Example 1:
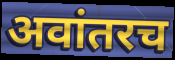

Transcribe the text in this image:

अवांतरच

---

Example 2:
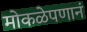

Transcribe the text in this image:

मोकळेपणानं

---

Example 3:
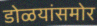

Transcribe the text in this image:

डोळयांसमोर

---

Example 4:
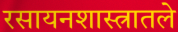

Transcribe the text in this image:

रसायनशास्त्रातले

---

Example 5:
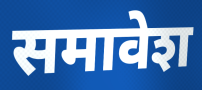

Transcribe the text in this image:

समावेश